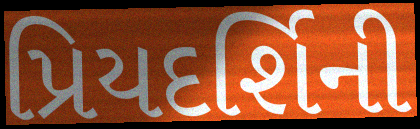
પ્રિયદર્શિની